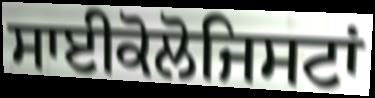
ਸਾਈਕੋਲੋਜਿਸਟਾਂ